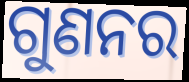
ଗୁଣନର